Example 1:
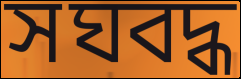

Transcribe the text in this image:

সঘবদ্ধ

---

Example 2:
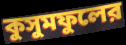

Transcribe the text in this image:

কুসুমফুলের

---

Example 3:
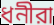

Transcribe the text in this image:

ধনীরা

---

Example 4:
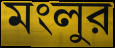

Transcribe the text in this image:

মংলুর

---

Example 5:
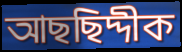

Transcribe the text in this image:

আছছিদ্দীক